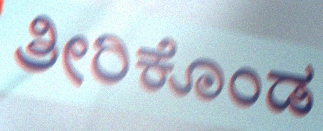
ತೀರಿಕೊಂಡ